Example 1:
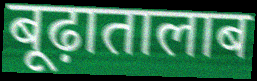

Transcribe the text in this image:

बूढ़ातालाब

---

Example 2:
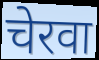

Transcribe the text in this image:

चेरवा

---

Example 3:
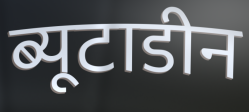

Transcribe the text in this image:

ब्यूटाडीन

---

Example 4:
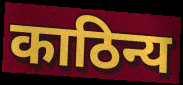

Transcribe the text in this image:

काठिन्य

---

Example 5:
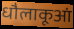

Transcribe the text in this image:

धौलाकूआं